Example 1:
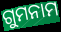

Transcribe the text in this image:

ଗୁମନାମ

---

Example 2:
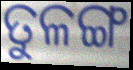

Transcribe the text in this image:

ତୁଳଙ୍ଗ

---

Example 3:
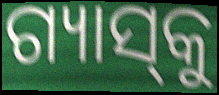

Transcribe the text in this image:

ଗ୍ୟାସ୍‌କୁ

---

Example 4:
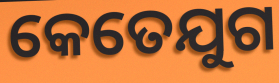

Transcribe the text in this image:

କେତେଯୁଗ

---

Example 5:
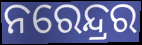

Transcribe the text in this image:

ନରେନ୍ଦ୍ରର